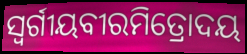
ସ୍ୱର୍ଗୀୟବୀରମିତ୍ରୋଦୟ